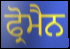
ਫ੍ਰੋਮੈਨ